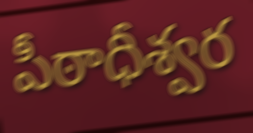
పీఠాధీశ్వర